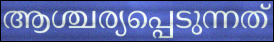
ആശ്ചര്യപ്പെടുന്നത്